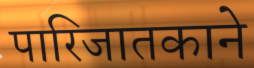
पारिजातकाने